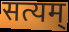
सत्यम्